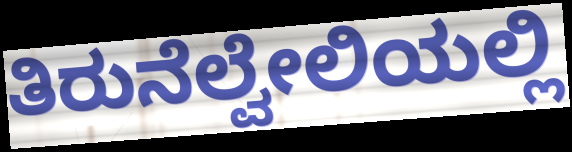
ತಿರುನೆಲ್ವೇಲಿಯಲ್ಲಿ